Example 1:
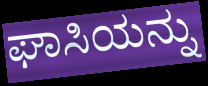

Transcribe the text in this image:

ಘಾಸಿಯನ್ನು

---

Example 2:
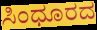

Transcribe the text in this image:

ಸಿಂಧೂರದ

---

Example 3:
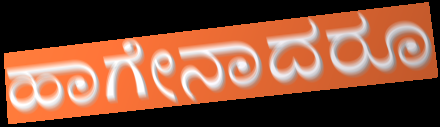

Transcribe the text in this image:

ಹಾಗೇನಾದರೂ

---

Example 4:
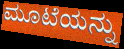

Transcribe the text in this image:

ಮೂಟೆಯನ್ನು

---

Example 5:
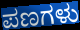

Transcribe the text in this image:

ಪಣಗಳು